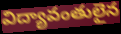
విద్యావంతులైన